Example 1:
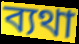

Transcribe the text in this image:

ব্যথা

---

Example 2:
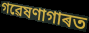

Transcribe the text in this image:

গৱেষণাগাৰত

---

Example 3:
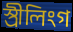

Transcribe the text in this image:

স্ত্ৰীলিংগ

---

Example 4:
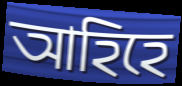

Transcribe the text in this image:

আহিহে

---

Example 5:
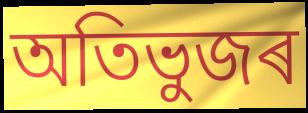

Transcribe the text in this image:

অতিভুজৰ